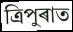
ত্ৰিপুৰাত